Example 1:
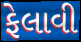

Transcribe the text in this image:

ફેલાવી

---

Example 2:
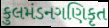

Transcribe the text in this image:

કુલમંડનગણિકૃત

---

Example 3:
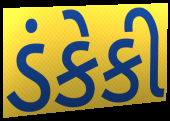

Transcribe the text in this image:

ડંકેકી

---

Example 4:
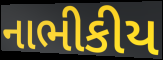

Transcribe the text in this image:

નાભીકીય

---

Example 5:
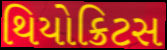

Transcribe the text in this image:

થિયોક્રિટસ